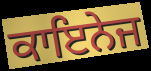
ਕਾਇਨੇਜ